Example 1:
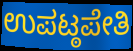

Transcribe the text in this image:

ಉಪಟ್ಠಪೇತಿ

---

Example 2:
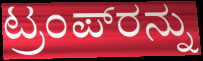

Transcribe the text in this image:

ಟ್ರಂಪ್‌ರನ್ನು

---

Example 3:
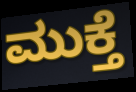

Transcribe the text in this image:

ಮುಕ್ತೆ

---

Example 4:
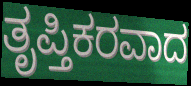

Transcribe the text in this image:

ತೃಪ್ತಿಕರವಾದ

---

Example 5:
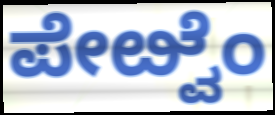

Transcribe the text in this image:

ಪೇೞ್ವೆಂ